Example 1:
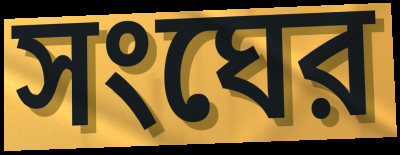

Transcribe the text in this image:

সংঘের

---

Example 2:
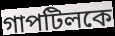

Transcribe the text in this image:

গাপটিলকে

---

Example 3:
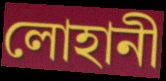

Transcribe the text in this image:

লোহানী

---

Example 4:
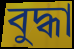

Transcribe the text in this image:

বুদ্ধা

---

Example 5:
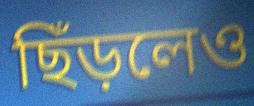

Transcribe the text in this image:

ছিঁড়লেও